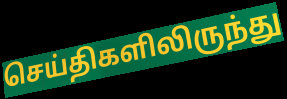
செய்திகளிலிருந்து